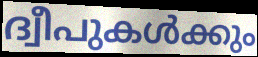
ദ്വീപുകൾക്കും